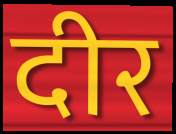
दीर